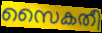
സൈകതീ